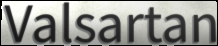
Valsartan